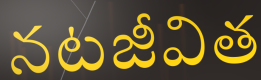
నటజీవిత